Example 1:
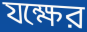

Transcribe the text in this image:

যক্ষের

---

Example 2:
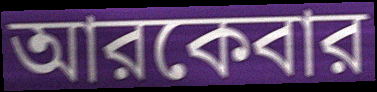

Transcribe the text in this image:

আরকেবার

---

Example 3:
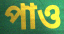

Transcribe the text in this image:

পাও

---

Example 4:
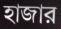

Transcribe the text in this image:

হাজার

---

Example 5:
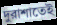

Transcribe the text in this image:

দুরাশাতেই